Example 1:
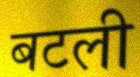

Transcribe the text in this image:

बटली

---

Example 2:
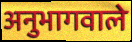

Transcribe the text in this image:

अनुभागवाले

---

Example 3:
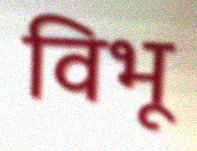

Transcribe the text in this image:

विभू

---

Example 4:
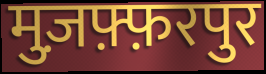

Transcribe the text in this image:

मुज़फ़्फ़रपुर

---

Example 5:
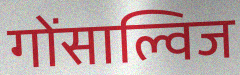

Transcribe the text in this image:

गोंसाल्विज